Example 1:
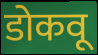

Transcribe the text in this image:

डोकवू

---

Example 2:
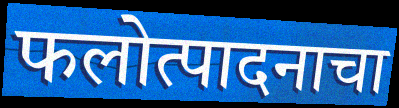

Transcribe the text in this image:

फलोत्पादनाचा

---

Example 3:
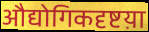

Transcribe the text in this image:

औद्योगिकदृष्टय़ा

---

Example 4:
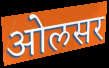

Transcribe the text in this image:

ओलसर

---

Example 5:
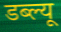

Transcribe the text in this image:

डब्ल्यू